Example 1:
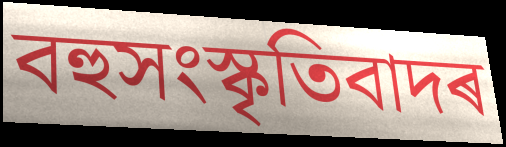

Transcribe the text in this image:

বহুসংস্কৃতিবাদৰ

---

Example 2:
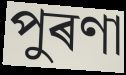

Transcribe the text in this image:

পুৰণা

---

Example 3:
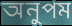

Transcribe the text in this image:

অনুপম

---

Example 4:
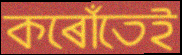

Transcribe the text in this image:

কৰোঁতেই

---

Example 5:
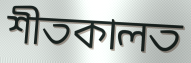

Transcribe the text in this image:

শীতকালত